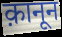
क़ानून